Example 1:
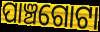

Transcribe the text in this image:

ପାଞ୍ଚଗୋଟା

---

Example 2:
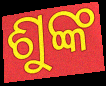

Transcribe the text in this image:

ଶୁଙ୍କ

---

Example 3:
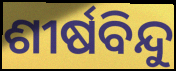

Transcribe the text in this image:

ଶୀର୍ଷବିନ୍ଦୁ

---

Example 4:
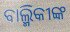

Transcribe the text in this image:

ବାଲ୍ମିକୀଙ୍କ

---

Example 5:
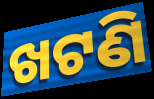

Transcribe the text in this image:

ଖଟଣି